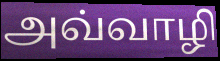
அவ்வாழி